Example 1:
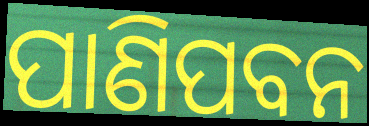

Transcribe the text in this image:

ପାଣିପବନ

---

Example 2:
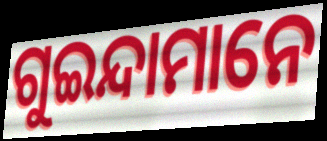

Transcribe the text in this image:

ଗୁଇନ୍ଦାମାନେ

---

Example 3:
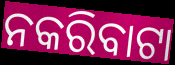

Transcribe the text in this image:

ନକରିବାଟା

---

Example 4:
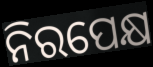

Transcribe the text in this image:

ନିରପେକ୍ଷ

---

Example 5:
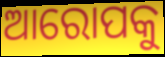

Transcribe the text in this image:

ଆରୋପକୁ